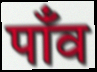
पांँव